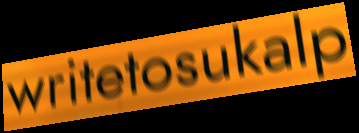
writetosukalp